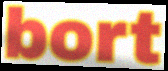
bort